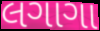
લગાગા